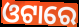
ଓଟାରେ